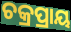
ଚକ୍ରପ୍ରାୟ